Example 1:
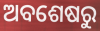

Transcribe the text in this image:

ଅବଶେଷରୁ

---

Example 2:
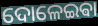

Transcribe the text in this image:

ଦୋଳେଇଵା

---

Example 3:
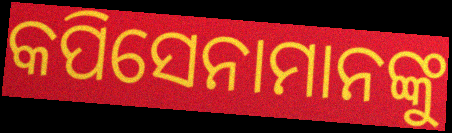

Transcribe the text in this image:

କପିସେନାମାନଙ୍କୁ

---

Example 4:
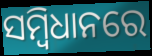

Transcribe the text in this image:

ସମ୍ବିଧାନରେ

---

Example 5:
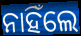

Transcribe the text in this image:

ନାହିଁଲେ